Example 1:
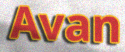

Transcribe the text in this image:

Avan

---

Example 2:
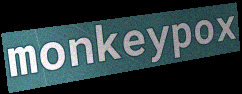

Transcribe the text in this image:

monkeypox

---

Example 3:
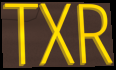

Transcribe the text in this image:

TXR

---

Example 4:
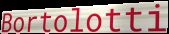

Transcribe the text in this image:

Bortolotti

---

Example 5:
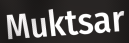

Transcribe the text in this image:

Muktsar